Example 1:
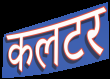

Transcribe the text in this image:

कलटर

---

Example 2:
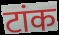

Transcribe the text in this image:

टांक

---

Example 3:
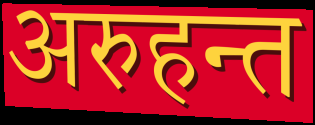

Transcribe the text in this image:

अरुहन्त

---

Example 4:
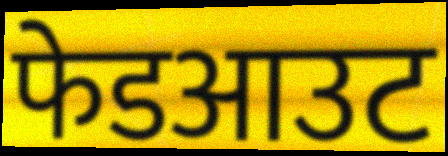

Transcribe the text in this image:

फेडआउट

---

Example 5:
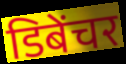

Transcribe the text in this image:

डिबेंचर